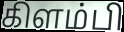
கிளம்பி